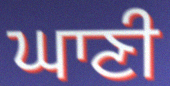
ਘਾਣੀ